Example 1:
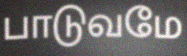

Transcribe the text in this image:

பாடுவமே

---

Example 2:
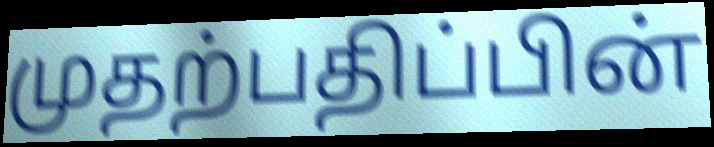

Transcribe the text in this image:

முதற்பதிப்பின்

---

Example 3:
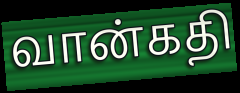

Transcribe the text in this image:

வான்கதி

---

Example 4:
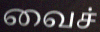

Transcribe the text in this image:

வைச்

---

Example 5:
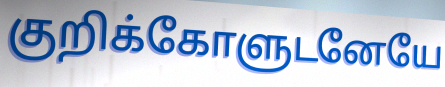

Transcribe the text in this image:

குறிக்கோளுடனேயே